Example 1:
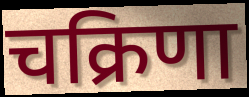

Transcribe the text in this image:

चक्रिणा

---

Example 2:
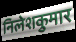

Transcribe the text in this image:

निलेशकुमार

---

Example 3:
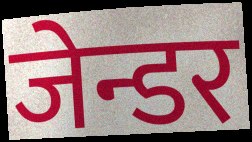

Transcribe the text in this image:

जेन्डर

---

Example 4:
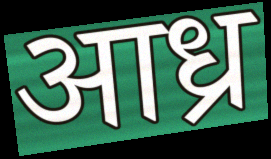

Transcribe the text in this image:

आध्र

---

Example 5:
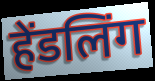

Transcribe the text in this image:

हेंडलिंग